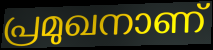
പ്രമുഖനാണ്